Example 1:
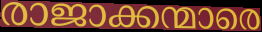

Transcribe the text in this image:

രാജാക്കന്മാരെ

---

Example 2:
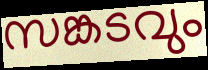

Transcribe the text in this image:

സങ്കടവും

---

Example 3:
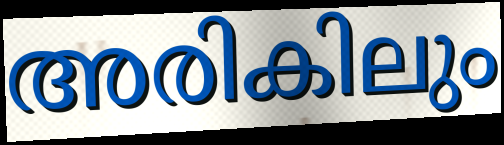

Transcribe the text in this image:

അരികിലും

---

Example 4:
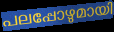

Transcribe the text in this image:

പലപ്പോഴുമായി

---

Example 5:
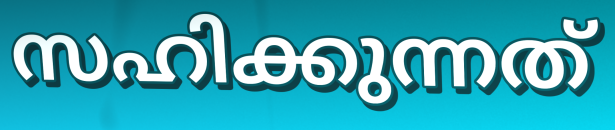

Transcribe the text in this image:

സഹിക്കുന്നത്